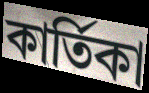
কাৰ্তিকা